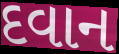
દવાન